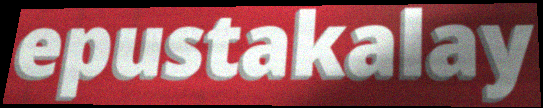
epustakalay